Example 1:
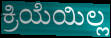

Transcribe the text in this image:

ಕ್ರಿಯೆಯಿಲ್ಲ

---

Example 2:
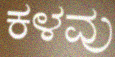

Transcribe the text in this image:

ಕಳವು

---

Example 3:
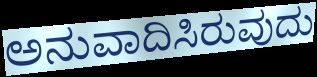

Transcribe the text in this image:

ಅನುವಾದಿಸಿರುವುದು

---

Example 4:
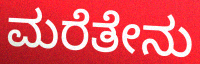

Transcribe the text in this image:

ಮರೆತೇನು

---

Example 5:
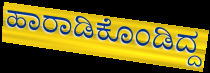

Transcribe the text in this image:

ಹಾರಾಡಿಕೊಂಡಿದ್ದ